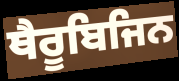
ਥੈਰੂਬਿਜਿਨ